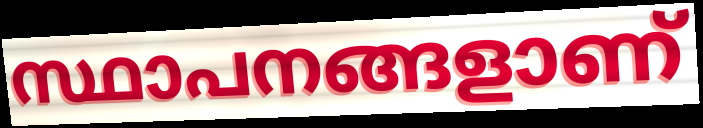
സ്ഥാപനങ്ങളാണ്